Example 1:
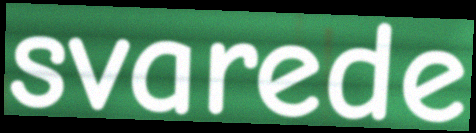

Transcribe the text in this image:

svarede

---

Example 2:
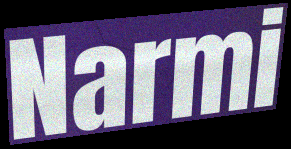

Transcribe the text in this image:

Narmi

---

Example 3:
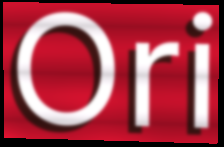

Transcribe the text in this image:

Ori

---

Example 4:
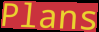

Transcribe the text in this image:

Plans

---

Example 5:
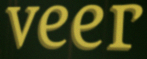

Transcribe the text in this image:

veer